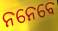
ନନେବେ